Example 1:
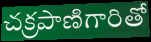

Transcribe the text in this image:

చక్రపాణిగారితో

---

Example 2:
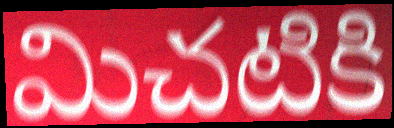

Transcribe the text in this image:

మిచటికి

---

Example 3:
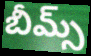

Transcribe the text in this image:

బీమ్స్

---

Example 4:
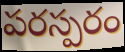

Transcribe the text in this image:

పరస్పరం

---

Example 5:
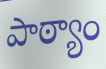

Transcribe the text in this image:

పాఠ్యాం